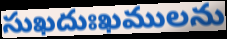
సుఖదుఃఖములను